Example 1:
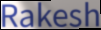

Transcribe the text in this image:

Rakesh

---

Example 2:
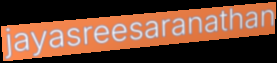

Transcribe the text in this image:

jayasreesaranathan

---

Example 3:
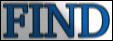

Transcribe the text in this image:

FIND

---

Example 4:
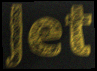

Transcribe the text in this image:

Jet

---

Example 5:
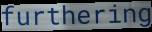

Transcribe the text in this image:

furthering